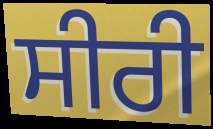
ਸੀਰੀ